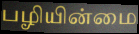
பழியின்மை